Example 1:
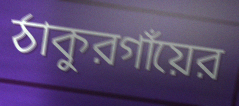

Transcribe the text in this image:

ঠাকুরগাঁয়ের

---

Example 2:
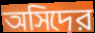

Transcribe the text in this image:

অসিদের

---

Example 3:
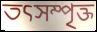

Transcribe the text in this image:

তৎসম্পৃক্ত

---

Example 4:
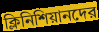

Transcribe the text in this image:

ক্লিনিশিয়ানদের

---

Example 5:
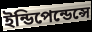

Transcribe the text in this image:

ইন্ডিপেন্ডেন্সে